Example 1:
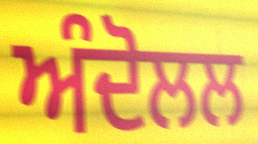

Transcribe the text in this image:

ਅੰਦੋਲਲ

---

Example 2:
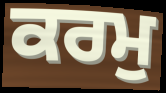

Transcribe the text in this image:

ਕਰਮੁ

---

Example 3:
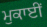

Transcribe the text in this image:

ਮੁਕਾਈਂ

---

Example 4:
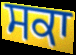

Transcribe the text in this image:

ਸਕਾ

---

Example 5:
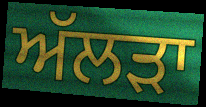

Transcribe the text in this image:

ਅੱਲੜਾ